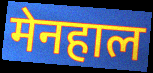
मेनहाल